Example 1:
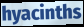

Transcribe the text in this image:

hyacinths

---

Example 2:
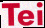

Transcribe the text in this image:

Tei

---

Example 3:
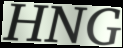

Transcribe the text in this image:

HNG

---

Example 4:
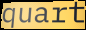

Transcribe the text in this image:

quart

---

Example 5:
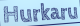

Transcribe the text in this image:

Hurkaru